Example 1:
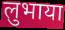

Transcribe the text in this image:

लुभाया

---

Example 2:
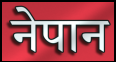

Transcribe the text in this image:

नेपान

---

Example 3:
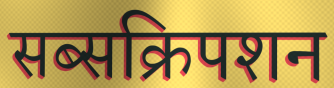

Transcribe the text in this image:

सब्सक्रिपशन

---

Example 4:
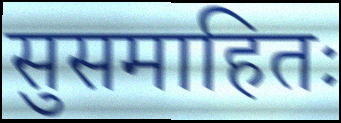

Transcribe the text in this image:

सुसमाहितः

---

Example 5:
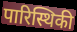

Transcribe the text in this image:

पारिस्थिकी